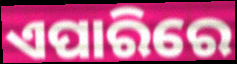
ଏପାରିରେ